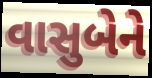
વાસુબેને